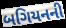
બગિયનની